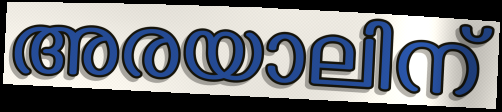
അരയാലിന്